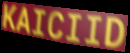
KAICIID